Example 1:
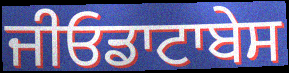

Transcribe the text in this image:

ਜੀਓਡਾਟਾਬੇਸ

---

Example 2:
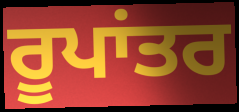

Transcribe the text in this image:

ਰੂਪਾਂਤਰ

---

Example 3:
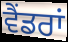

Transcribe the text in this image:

ਵੈਂਡਰਾਂ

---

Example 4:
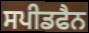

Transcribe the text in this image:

ਸਪੀਡਫੈਨ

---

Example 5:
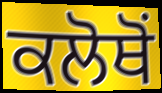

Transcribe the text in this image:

ਕਲੋਥੋਂ